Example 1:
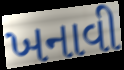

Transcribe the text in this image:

ખનાવી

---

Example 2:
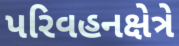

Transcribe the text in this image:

પરિવહનક્ષેત્રે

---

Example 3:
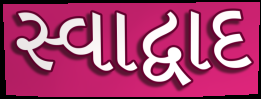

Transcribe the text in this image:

સ્વાદ્વાદ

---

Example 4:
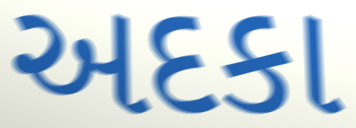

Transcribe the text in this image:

અદકા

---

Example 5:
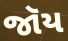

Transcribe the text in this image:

જૉય